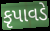
કૃપાવડે